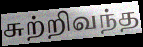
சுற்றிவந்த